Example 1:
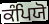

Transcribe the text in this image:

ਕੰਪਿਯੋ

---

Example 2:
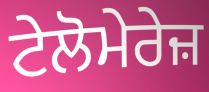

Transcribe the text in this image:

ਟੇਲੋਮੇਰੇਜ਼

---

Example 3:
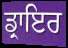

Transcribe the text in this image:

ਡ੍ਰਾਇਰ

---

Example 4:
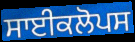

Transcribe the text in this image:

ਸਾਈਕਲੋਪਸ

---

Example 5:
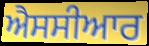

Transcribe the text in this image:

ਐਸਸੀਆਰ